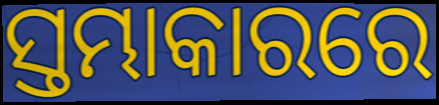
ସ୍ତମ୍ଭାକାରରେ